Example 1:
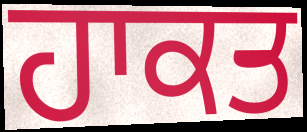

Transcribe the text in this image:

ਹਾਕਤ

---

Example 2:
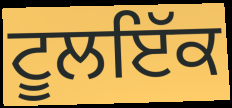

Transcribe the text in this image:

ਟੂਲਇੱਕ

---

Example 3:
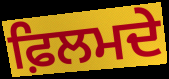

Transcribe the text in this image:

ਫ਼ਿਲਮਦੇ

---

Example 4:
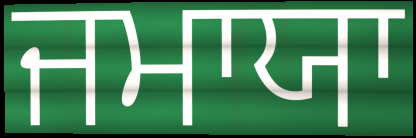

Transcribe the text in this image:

ਜਮਾਯਾ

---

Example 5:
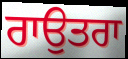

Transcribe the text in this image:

ਰਾਉਤਰਾ